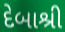
દેબાશ્રી